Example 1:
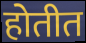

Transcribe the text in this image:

होतीत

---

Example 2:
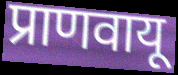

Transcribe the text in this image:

प्राणवायू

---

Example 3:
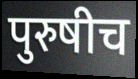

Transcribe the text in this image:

पुरुषीच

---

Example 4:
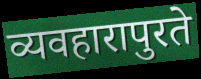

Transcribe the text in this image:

व्यवहारापुरते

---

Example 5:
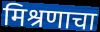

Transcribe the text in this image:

मिश्रणाचा